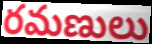
రమణులు